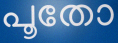
പൂതോ